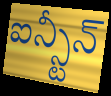
ఐన్స్టీన్